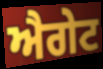
ਐਗੇਟ